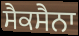
ਸੈਕਸੈਨਾ